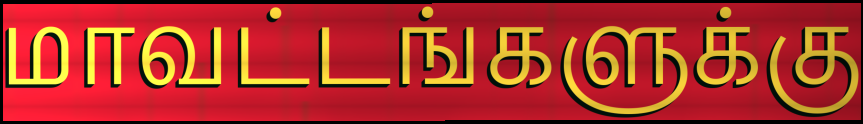
மாவட்டங்களுக்கு